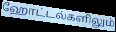
ஹோட்டல்களிலும்